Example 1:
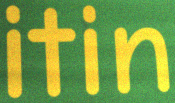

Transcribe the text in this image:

itin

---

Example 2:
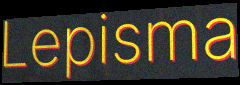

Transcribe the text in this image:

Lepisma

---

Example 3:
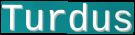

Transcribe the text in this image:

Turdus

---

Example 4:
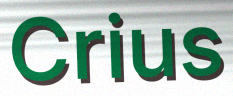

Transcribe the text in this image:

Crius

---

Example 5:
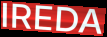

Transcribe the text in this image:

IREDA